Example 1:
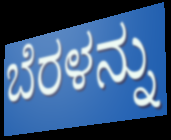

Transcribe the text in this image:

ಬೆರಳನ್ನು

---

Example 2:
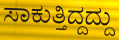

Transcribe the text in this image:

ಸಾಕುತ್ತಿದ್ದದ್ದು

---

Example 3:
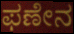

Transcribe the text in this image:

ಫಣೇನ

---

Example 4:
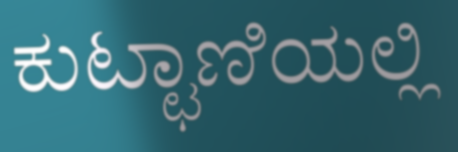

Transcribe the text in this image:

ಕುಟ್ಟಾಣಿಯಲ್ಲಿ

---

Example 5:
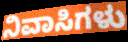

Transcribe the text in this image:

ನಿವಾಸಿಗಳು